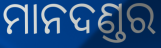
ମାନଦଣ୍ଡର